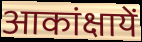
आकांक्षायें